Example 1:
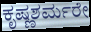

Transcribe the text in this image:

ಕೃಷ್ಣಶರ್ಮರೇ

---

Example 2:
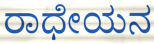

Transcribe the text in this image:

ರಾಧೇಯನ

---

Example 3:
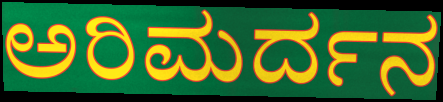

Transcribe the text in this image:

ಅರಿಮರ್ದನ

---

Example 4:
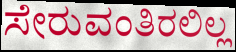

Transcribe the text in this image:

ಸೇರುವಂತಿರಲಿಲ್ಲ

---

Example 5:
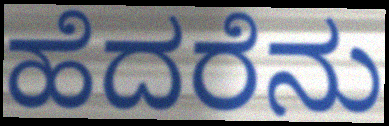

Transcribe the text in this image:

ಹೆದರೆನು